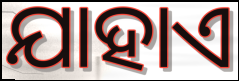
ଯାହାଏ